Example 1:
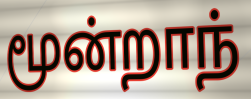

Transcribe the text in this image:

மூன்றாந்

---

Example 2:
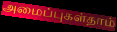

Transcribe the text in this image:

அமைப்புகள்தாம்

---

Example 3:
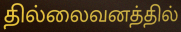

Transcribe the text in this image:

தில்லைவனத்தில்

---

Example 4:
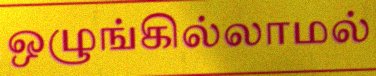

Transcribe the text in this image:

ஒழுங்கில்லாமல்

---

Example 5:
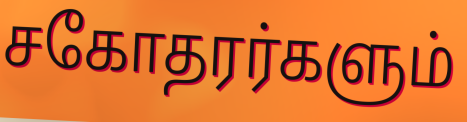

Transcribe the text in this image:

சகோதரர்களும்